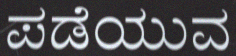
ಪಡೆಯುವ